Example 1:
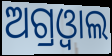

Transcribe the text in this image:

ଅଗ୍ରଓ୍ୱାଲ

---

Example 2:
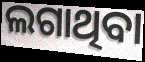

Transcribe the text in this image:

ଲଗାଥିବା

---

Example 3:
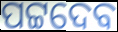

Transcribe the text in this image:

ପଟ୍ଟଦେବ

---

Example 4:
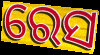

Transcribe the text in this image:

ରେସ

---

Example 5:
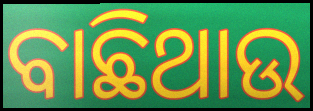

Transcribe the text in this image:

ବାଛିଥାଉ